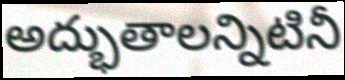
అద్భుతాలన్నిటినీ